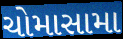
ચોમાસામા